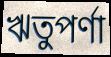
ঋতুপর্ণা